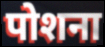
पोशना